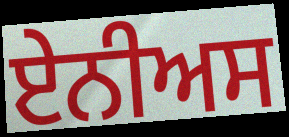
ਏਨੀਅਸ